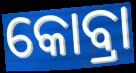
କୋବ୍ରା